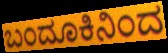
ಬಂದೂಕಿನಿಂದ